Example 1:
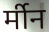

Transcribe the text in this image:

र्मीन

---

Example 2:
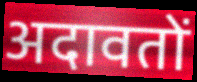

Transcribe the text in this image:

अदावतों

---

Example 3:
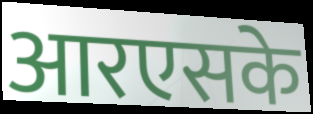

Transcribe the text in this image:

आरएसके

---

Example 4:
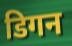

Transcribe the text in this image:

डिगन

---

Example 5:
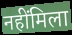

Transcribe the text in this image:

नहींमिला